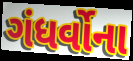
ગંધર્વોના